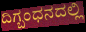
ದಿಗ್ಬಂಧನದಲ್ಲಿ